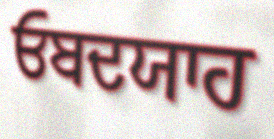
ਓਬਦਯਾਹ